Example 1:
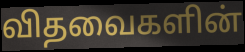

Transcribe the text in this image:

விதவைகளின்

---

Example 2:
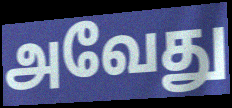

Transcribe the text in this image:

அவேது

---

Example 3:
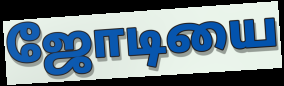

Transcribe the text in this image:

ஜோடியை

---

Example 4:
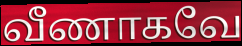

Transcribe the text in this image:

வீணாகவே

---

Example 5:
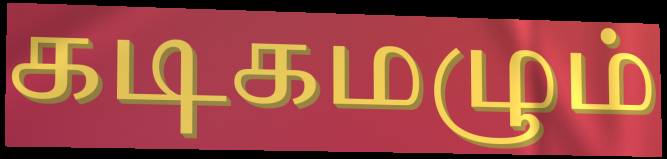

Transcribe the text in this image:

கடிகமழும்